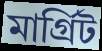
মাৰ্গ্ৰিট